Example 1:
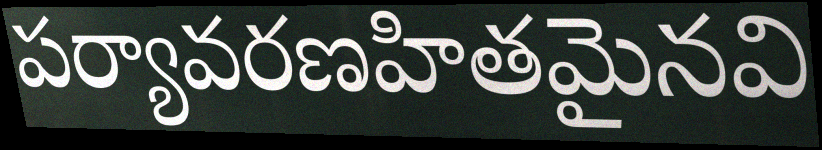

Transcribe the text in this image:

పర్యావరణహితమైనవి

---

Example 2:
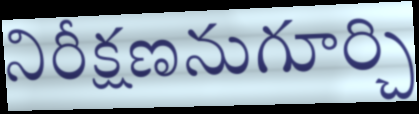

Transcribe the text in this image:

నిరీక్షణనుగూర్చి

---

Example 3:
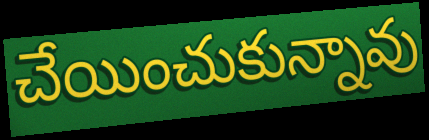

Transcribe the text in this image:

చేయించుకున్నావు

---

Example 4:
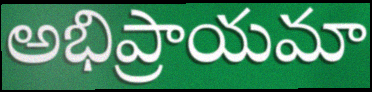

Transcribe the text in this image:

అభిప్రాయమా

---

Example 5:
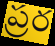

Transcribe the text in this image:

ప్రర